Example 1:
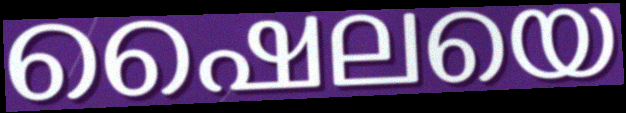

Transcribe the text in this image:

ഷൈലയെ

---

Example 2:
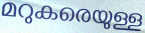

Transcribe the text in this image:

മറുകരെയുള്ള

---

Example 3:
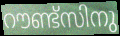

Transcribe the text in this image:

റൗണ്ട്സിനു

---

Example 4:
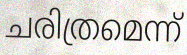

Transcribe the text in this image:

ചരിത്രമെന്ന്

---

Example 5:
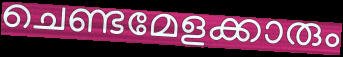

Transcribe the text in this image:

ചെണ്ടമേളക്കാരും